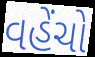
વહેંચો